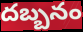
దబ్బనం